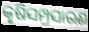
କୃଷିସମ୍ପ୍ରସାରଣ